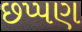
છપ્પણ